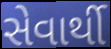
સેવાર્થી